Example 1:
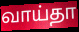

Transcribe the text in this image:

வாய்தா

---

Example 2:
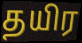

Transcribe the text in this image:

தயிர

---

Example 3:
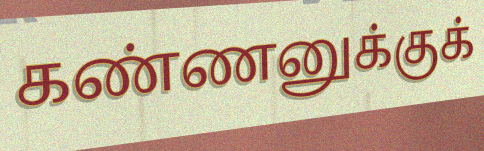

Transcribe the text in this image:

கண்ணனுக்குக்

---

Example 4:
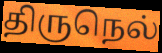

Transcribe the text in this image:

திருநெல்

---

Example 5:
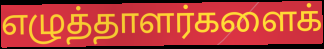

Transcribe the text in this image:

எழுத்தாளர்களைக்